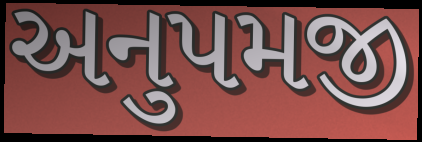
અનુપમજી